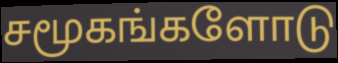
சமூகங்களோடு